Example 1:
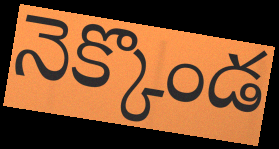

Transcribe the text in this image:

నెక్కొండ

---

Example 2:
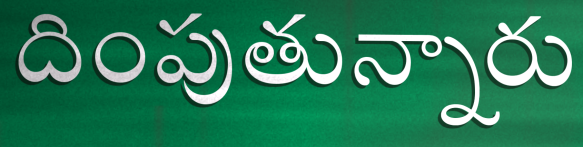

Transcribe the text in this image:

దింపుతున్నారు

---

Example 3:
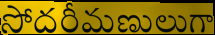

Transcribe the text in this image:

సోదరీమణులుగా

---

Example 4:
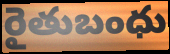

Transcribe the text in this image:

రైతుబంధు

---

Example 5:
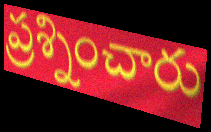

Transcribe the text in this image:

ప్రశ్నించారు